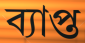
ব্যাপ্ত